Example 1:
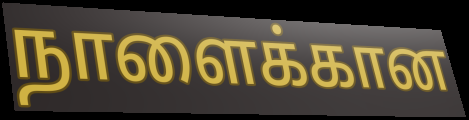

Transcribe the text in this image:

நாளைக்கான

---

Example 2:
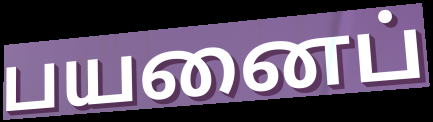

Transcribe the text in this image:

பயனைப்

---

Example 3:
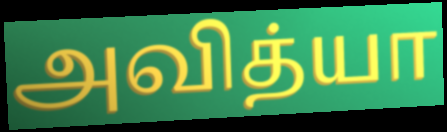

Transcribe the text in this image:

அவித்யா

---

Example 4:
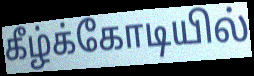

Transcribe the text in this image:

கீழ்க்கோடியில்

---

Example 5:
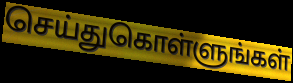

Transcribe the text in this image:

செய்துகொள்ளுங்கள்